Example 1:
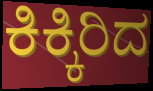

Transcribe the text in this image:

ಕಿಕ್ಕಿರಿದ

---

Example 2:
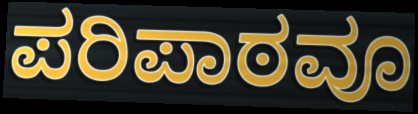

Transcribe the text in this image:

ಪರಿಪಾಠವೂ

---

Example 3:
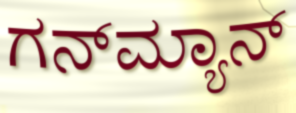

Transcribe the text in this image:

ಗನ್‌ಮ್ಯಾನ್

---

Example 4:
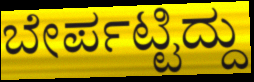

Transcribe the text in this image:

ಬೇರ್ಪಟ್ಟಿದ್ದು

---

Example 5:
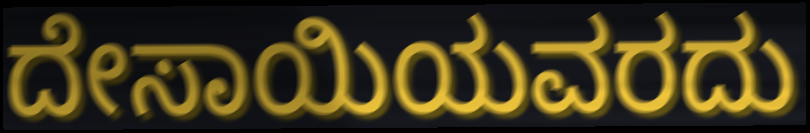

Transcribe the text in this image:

ದೇಸಾಯಿಯವರದು